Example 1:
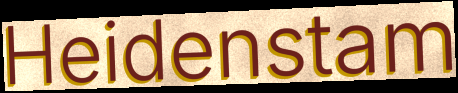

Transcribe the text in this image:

Heidenstam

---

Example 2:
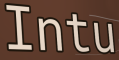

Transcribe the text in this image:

Intu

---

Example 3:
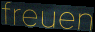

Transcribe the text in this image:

freuen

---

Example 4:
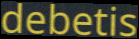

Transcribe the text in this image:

debetis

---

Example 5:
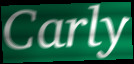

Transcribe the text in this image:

Carly